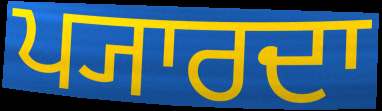
ਪ੍ਯਾਰਦਾ